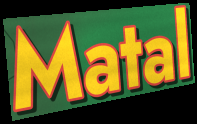
Matal